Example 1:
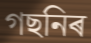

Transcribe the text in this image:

গছনিৰ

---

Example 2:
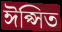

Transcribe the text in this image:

ঈপ্সিত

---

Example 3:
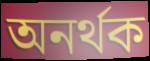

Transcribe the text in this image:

অনৰ্থক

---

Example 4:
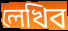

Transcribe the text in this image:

লেখিব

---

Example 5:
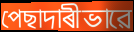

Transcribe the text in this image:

পেছাদাৰীভাৱে